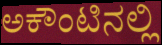
ಅಕೌಂಟಿನಲ್ಲಿ